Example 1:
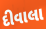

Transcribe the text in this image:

દીવાલા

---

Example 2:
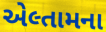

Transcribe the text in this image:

એલ્તામના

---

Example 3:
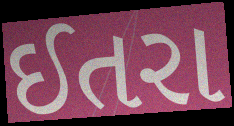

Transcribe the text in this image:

ઈતરા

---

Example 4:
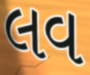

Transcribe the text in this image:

લવ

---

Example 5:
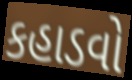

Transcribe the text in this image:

કહાડવો